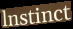
lnstinct